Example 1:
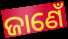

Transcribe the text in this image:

ଜାଣେଁ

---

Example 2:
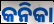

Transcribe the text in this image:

କନିକା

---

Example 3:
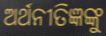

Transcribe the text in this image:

ଅର୍ଥନୀତିଜ୍ଞଙ୍କୁ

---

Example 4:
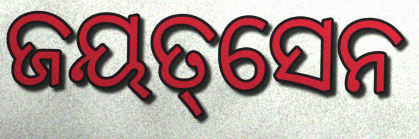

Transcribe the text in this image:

ଜୟତ୍‌ସେନ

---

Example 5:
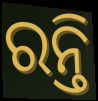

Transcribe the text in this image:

ରନ୍ତି